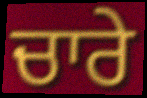
ਚਾਰੇ